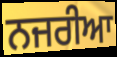
ਨਜਰੀਆ